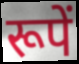
रूपें